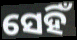
ସେହିଁ